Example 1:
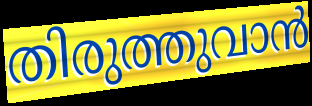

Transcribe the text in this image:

തിരുത്തുവാൻ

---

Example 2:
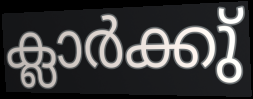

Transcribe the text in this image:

ക്ലാർക്കു്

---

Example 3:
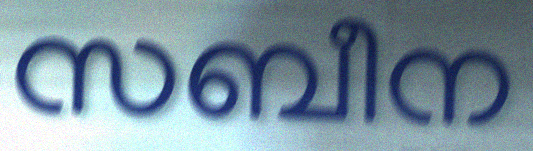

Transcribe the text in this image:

സബീന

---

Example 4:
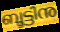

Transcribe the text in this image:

ബൂട്ടിനു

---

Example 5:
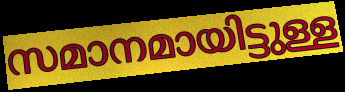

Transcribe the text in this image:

സമാനമായിട്ടുള്ള